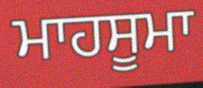
ਮਾਹਸੂਮਾ